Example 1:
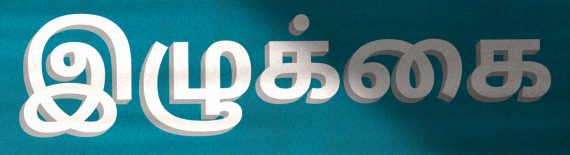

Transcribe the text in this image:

இழுக்கை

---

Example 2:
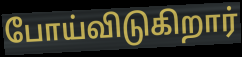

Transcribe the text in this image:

போய்விடுகிறார்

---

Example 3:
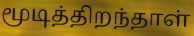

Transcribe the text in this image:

மூடித்திறந்தாள்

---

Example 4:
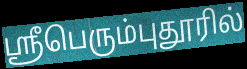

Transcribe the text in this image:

ஸ்ரீபெரும்புதூரில்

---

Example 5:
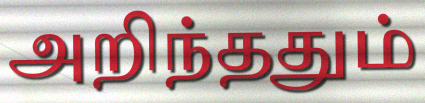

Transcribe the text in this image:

அறிந்ததும்